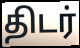
திடர்